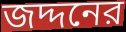
জদ্দনের